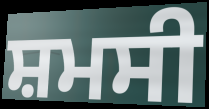
ਸ਼ਮਸੀ